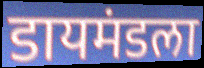
डायमंडला